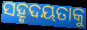
ସହୃଦୟତାକୁ